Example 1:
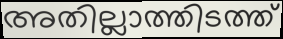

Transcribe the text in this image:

അതില്ലാത്തിടത്ത്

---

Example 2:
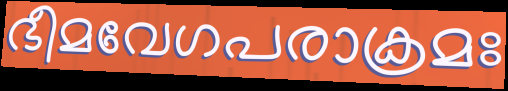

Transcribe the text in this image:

ഭീമവേഗപരാക്രമഃ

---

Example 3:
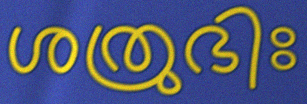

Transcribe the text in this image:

ശത്രുഭിഃ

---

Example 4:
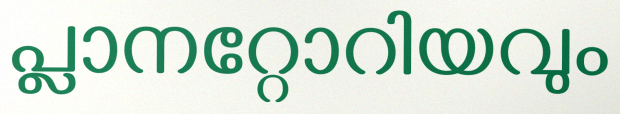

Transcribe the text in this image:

പ്ലാനറ്റോറിയവും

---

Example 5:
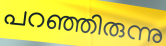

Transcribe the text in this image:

പറഞ്ഞിരുന്നു